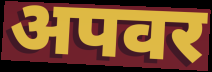
अपवर